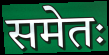
समेतः